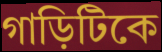
গাড়িটিকে